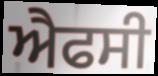
ਐਫਸੀ